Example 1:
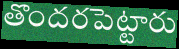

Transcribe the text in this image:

తొందరపెట్టారు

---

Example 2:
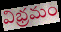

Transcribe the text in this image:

విభ్రమం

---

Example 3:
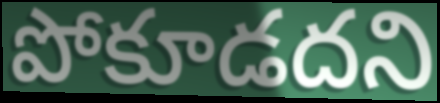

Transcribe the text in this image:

పోకూడదని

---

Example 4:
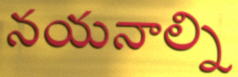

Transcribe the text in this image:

నయనాల్ని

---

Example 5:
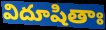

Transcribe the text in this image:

విదూషితాః